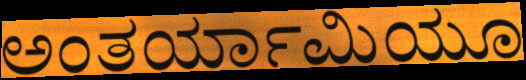
ಅಂತರ್ಯಾಮಿಯೂ